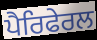
ਪੈਰਿਫੇਰਲ